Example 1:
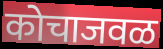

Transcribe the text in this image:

कोचाजवळ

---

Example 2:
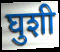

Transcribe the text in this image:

घुशी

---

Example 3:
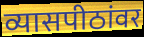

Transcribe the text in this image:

व्यासपीठांवर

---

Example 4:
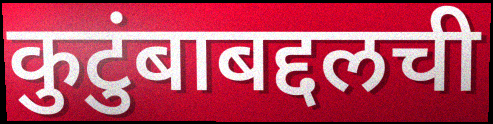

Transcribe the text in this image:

कुटुंबाबद्दलची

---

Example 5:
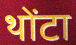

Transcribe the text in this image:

थोंटा